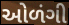
ઓળંગી